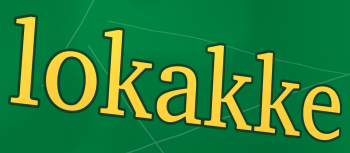
lokakke